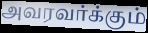
அவரவர்க்கும்